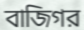
বাজিগর